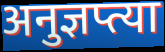
अनुज्ञप्त्या